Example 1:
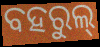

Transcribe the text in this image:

ବହରୁଲ୍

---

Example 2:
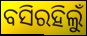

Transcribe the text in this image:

ବସିରହିଲୁଁ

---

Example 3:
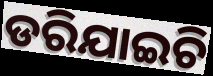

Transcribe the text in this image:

ଡରିଯାଇଚି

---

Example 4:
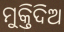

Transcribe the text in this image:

ମୁକ୍ତିଦିଅ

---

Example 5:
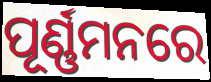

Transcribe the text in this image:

ପୂର୍ଣ୍ଣମନରେ